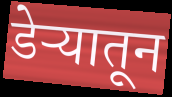
डेऱ्यातून